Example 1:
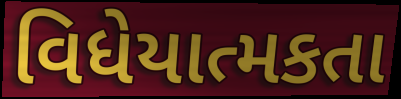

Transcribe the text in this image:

વિધેયાત્મકતા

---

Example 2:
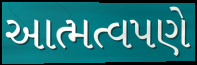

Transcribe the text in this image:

આત્મત્વપણે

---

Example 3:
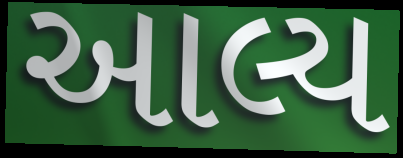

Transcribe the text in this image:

આલ્ય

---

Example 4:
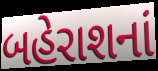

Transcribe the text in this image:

બહેરાશનાં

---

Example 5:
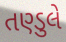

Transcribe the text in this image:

તણ્ડુલે